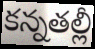
కన్నతల్లీ